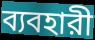
ব্যবহারী